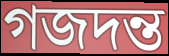
গজদন্ত